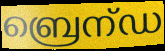
ബ്രെന്ഡ